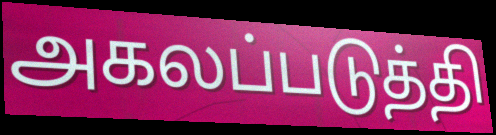
அகலப்படுத்தி